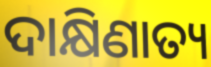
ଦାକ୍ଷିଣାତ୍ୟ